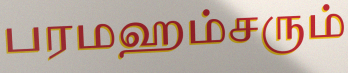
பரமஹம்சரும்